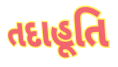
તદાહૂતિ